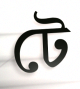
টে